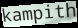
kampith